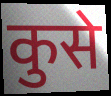
कुसे